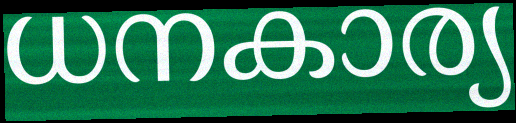
ധനകാര്യ